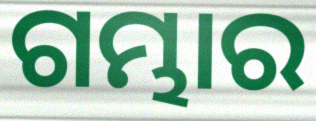
ଗମ୍ଭାର